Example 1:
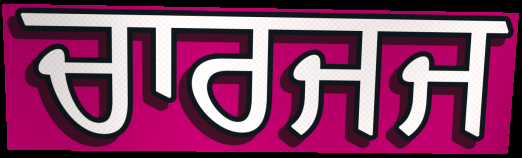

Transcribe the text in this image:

ਚਾਰਜਜ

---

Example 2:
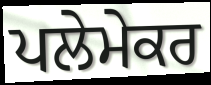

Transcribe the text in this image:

ਪਲੇਮੇਕਰ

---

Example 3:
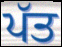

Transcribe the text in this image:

ਪੱਤ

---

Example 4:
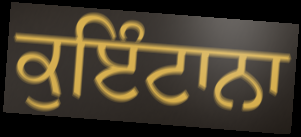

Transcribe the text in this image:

ਕੁਇੰਟਾਨਾ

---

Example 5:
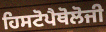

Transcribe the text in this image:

ਹਿਸਟੋਪੈਥੋਲੋਜੀ